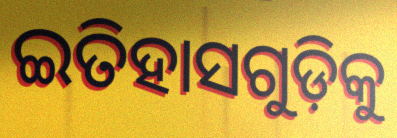
ଇତିହାସଗୁଡ଼ିକୁ